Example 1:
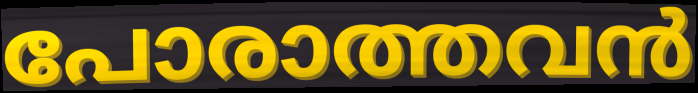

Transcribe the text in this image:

പോരാത്തവൻ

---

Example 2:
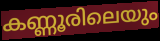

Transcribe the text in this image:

കണ്ണൂരിലെയും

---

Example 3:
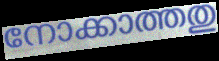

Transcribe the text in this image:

നോക്കാത്തതു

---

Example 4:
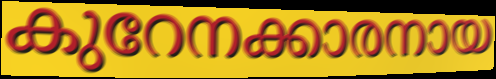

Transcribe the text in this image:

കുറേനക്കാരനായ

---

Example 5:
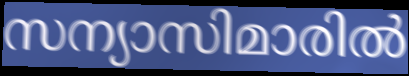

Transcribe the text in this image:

സന്യാസിമാരിൽ